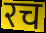
रच